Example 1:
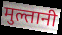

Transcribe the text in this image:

मुल्‍तानी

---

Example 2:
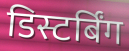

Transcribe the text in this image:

डिस्टर्बिंग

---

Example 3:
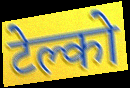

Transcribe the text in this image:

टेल्को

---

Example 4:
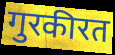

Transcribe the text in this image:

गुरकीरत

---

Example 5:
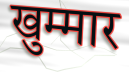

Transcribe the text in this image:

खुम्मार